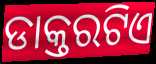
ଡାକ୍ତରଟିଏ